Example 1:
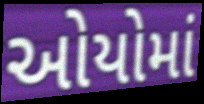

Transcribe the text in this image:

ઓયોમાં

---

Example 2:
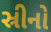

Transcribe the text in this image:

સ્રીનો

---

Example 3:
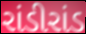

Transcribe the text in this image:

રાંડીરાંડ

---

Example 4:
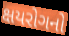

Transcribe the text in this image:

ક્ષયરોગનો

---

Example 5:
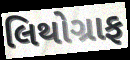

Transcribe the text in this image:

લિથોગ્રાફ